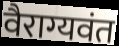
वैराग्यवंत